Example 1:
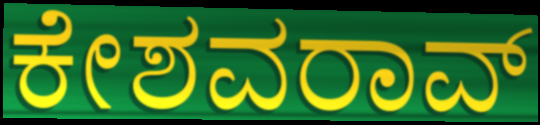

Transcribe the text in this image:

ಕೇಶವರಾವ್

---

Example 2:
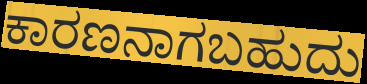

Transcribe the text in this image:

ಕಾರಣನಾಗಬಹುದು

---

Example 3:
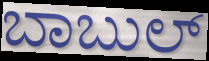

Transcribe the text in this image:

ಬಾಬುಲ್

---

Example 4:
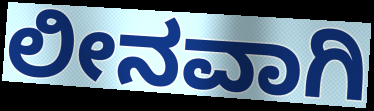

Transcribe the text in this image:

ಲೀನವಾಗಿ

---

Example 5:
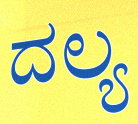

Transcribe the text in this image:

ದಲ್ಯ